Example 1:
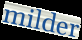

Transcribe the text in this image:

milder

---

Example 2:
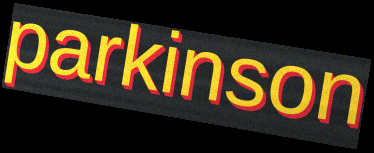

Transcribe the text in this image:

parkinson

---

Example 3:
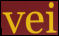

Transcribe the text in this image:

vei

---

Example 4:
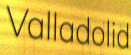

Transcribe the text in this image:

Valladolid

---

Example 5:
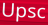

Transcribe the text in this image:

Upsc